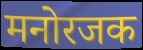
मनोरजक